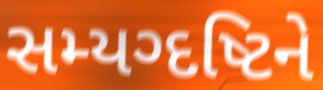
સમ્યગ્દષ્ટિને